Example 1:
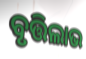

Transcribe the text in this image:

ବୃତ୍ତିଲାଭ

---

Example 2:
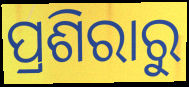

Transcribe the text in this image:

ପ୍ରଶିରାରୁ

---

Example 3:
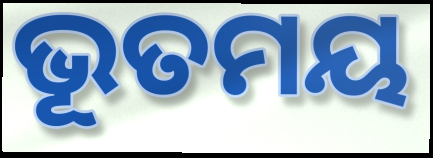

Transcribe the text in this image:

ଭୂତମୟ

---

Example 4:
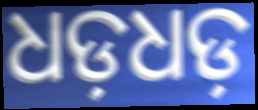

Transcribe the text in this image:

ଧଡ଼ଧଡ଼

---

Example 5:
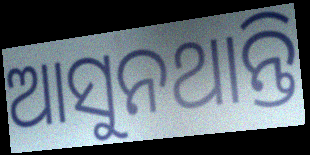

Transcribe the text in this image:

ଆସୁନଥାନ୍ତି